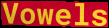
Vowels